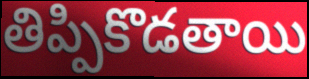
తిప్పికొడతాయి